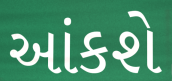
આંકશે